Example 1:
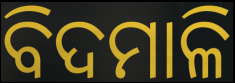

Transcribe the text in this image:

ବିଦମାଳି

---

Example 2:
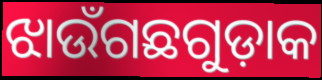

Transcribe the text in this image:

ଝାଉଁଗଛଗୁଡ଼ାକ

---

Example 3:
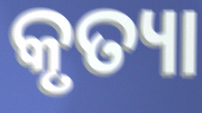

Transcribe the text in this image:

କୃତ୍ୟା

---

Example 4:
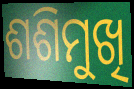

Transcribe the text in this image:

ଶଶିମୁଖି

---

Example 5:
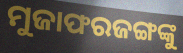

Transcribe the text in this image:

ମୁଜାଫରଜଙ୍ଗଙ୍କୁ